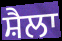
ਸ਼ੈਲਾ